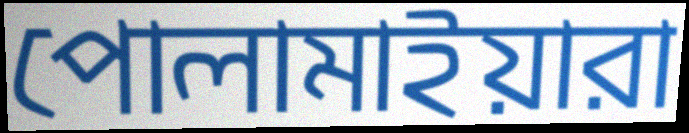
পোলামাইয়ারা